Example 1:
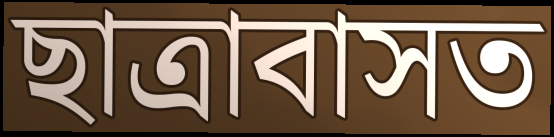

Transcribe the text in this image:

ছাত্ৰাবাসত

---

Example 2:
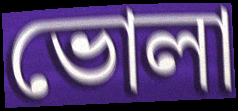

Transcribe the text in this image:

ভোলা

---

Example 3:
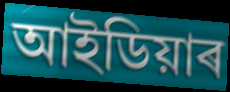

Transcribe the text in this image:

আইডিয়াৰ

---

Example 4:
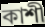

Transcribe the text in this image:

কাশী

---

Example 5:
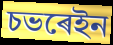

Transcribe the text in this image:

চভৰেইন